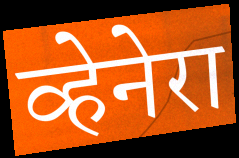
व्हेनेरा